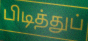
பிடித்துப்